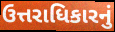
ઉત્તરાધિકારનું